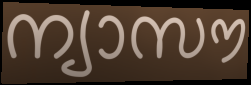
ന്യാസൗ